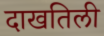
दाखतिली